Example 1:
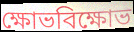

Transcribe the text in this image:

ক্ষোভবিক্ষোভ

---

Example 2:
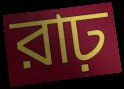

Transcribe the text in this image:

রাঢ়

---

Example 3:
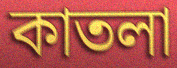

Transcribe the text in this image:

কাতলা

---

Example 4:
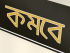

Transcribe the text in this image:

কমবে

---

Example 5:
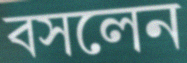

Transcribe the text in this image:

বসলেন